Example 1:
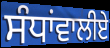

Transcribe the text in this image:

ਸੰਧਾਂਵਾਲੀਏ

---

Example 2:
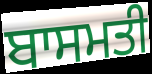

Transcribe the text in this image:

ਬਾਸਮਤੀ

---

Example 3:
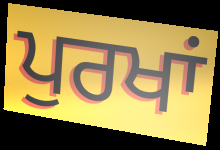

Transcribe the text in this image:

ਪੁਰਖਾਂ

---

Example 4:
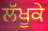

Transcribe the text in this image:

ਲੱਖੂਕੇ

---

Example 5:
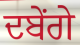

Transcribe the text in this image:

ਦਬੇਂਗੇ